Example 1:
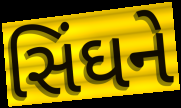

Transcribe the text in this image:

સિંઘને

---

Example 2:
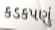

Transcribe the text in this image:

કડકપણું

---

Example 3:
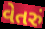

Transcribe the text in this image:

વેતરું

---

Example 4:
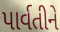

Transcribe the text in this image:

પાર્વતીને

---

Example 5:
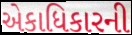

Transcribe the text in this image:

એકાધિકારની